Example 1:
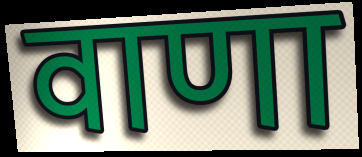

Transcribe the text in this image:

वाणा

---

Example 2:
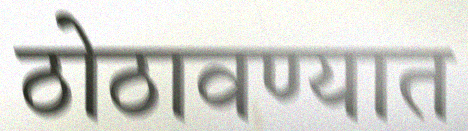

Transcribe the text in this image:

ठोठावण्यात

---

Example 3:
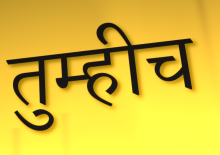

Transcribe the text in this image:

तुम्हीच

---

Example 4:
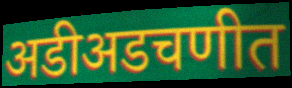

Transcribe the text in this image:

अडीअडचणीत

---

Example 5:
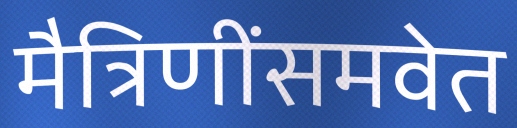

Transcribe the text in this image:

मैत्रिणींसमवेत